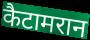
कैटामरान